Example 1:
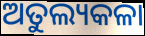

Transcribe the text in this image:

ଅତୁଲ୍ୟକଳା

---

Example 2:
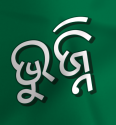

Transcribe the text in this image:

ଭୁଜ୍ନି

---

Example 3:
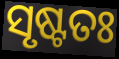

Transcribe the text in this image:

ସୃଷ୍ଟତଃ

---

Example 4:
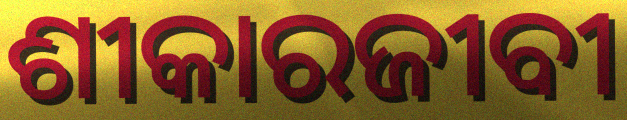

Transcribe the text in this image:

ଶୀକାରଜୀବୀ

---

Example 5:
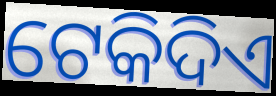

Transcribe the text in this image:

ଟେକିଦିଏ